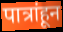
पात्रांहून